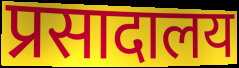
प्रसादालय